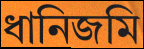
ধানিজমি